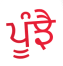
ਪੂੰਝੈ